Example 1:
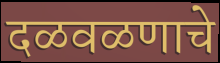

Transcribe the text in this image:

दळवळणाचे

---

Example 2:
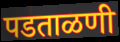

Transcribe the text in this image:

पडताळणी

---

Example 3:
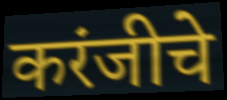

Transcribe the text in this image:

करंजीचे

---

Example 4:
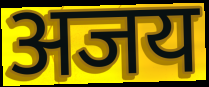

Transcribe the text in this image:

अजय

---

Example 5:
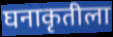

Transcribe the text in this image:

घनाकृतीला